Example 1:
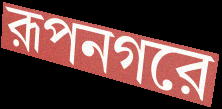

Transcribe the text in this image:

রূপনগরে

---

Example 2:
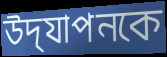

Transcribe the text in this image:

উদ্‌যাপনকে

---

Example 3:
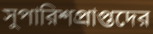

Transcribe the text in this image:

সুপারিশপ্রাপ্তদের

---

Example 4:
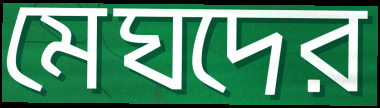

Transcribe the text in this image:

মেঘদের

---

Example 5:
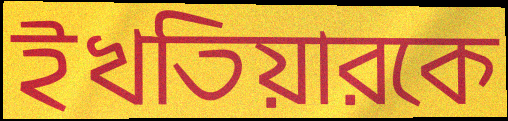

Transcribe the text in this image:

ইখতিয়ারকে